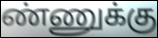
ண்ணுக்கு